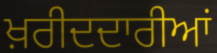
ਖ਼ਰੀਦਦਾਰੀਆਂ